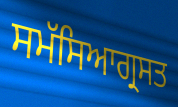
ਸਮੱਸਿਆਗ੍ਰਸਤ